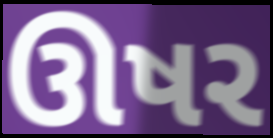
ઊષર